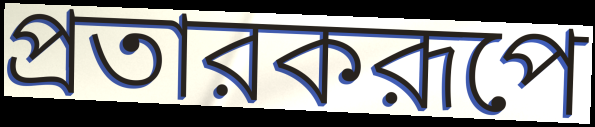
প্রতারকরূপে